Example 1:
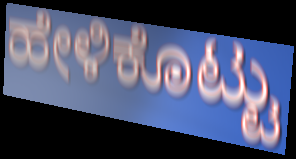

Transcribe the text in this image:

ಹೇಳಿಕೊಟ್ಟು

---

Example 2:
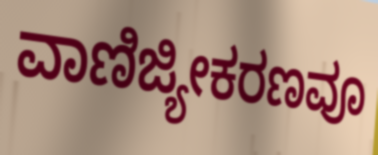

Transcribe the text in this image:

ವಾಣಿಜ್ಯೀಕರಣವೂ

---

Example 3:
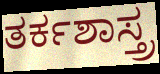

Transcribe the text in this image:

ತರ್ಕಶಾಸ್ತ್ರ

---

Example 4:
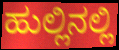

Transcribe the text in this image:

ಹುಲ್ಲಿನಲ್ಲಿ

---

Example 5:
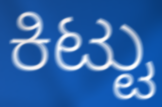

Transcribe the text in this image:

ಕಿಟ್ಟು